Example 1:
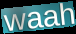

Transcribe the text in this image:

waah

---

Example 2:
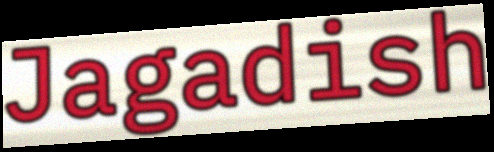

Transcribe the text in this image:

Jagadish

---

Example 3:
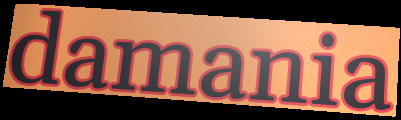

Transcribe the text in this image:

damania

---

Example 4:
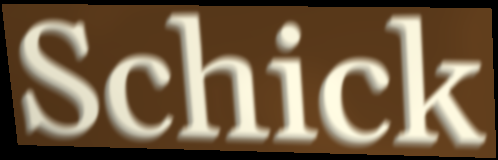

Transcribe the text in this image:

Schick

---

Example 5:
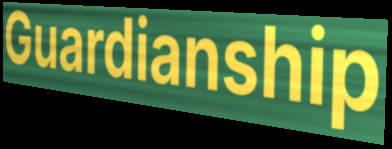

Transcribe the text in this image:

Guardianship